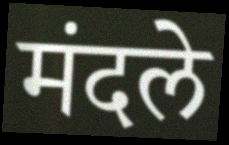
मंदले